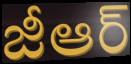
జీఆర్